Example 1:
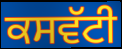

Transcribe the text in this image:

ਕਸਵੱਟੀ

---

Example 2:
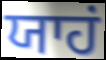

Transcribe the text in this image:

ਯਾਹਂ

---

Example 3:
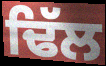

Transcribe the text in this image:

ਢਿੱਲ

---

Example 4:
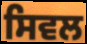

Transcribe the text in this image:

ਸਿਵਲ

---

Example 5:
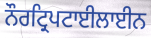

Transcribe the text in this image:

ਨੌਰਟ੍ਰਿਪਟਾਈਲਾਈਨ